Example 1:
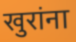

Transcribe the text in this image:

खुरांना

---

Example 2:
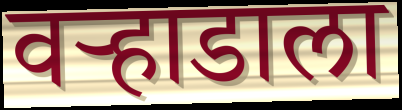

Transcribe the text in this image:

वऱ्हाडाला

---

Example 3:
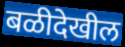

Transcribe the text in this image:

बळीदेखील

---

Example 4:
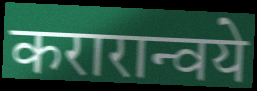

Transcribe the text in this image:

करारान्वये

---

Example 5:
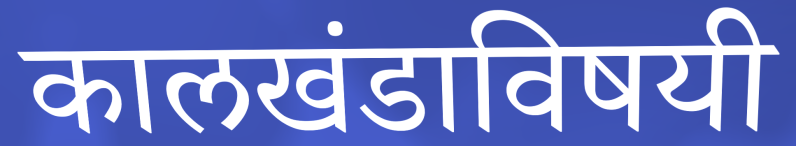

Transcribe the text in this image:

कालखंडाविषयी